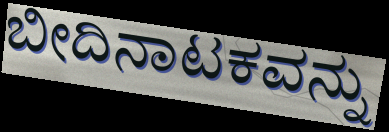
ಬೀದಿನಾಟಕವನ್ನು